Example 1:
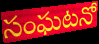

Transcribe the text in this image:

సంఘటనో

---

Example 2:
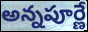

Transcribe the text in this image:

అన్నపూర్ణే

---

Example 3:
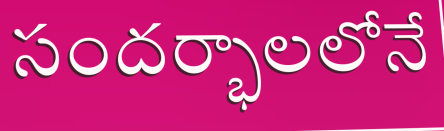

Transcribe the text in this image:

సందర్భాలలోనే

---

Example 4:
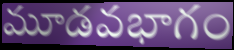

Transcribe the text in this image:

మూడవభాగం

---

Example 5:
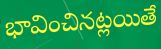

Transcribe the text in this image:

భావించినట్లయితే